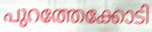
പുറത്തേക്കോടി